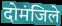
दोमंजिले